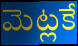
మెట్లకే